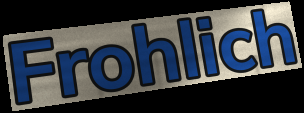
Frohlich